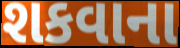
શકવાના